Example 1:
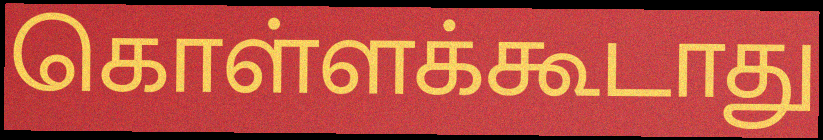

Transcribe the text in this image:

கொள்ளக்கூடாது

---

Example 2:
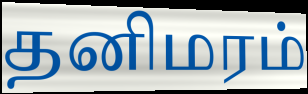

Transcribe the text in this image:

தனிமரம்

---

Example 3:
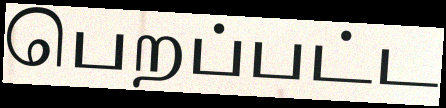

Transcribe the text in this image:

பெறப்பட்ட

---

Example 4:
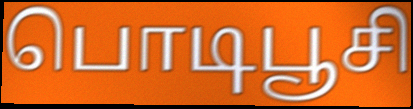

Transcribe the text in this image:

பொடிபூசி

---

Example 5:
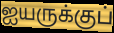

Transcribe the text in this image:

ஐயருக்குப்